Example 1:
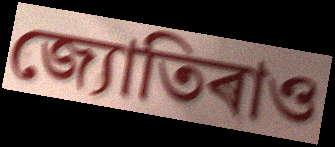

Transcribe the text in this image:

জ্যোতিৰাও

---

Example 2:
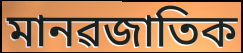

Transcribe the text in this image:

মানৱজাতিক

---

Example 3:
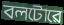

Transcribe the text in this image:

বলটোৱে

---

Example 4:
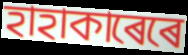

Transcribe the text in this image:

হাহাকাৰেৰে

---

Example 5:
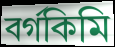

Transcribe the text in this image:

বৰ্গকিমি